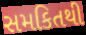
સમકિતથી